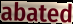
abated